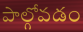
పాల్గోవడం